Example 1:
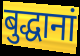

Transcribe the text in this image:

बुद्धानां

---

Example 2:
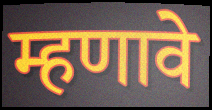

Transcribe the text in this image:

म्हणावे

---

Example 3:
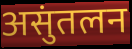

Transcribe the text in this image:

असुंतलन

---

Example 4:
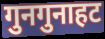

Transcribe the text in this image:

गुनगुनाहट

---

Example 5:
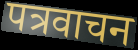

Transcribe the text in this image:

पत्रवाचन